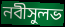
নবীসুলভ